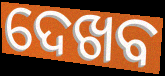
ଦେଖବ